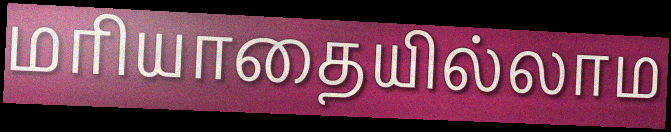
மரியாதையில்லாம